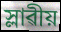
স্লাৱীয়